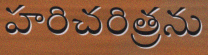
హరిచరిత్రను